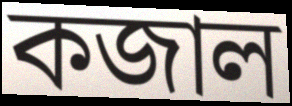
কজাল